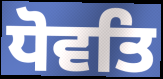
ਧੋਵਤਿ